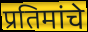
प्रतिमांचे